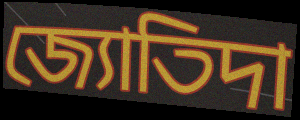
জ্যোতিদা